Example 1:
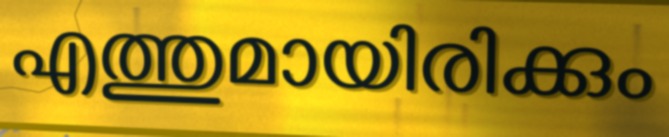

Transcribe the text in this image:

എത്തുമായിരിക്കും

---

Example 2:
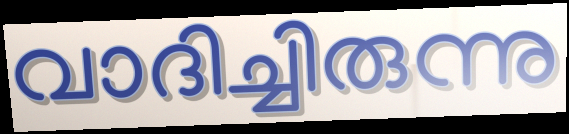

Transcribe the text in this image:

വാദിച്ചിരുന്നു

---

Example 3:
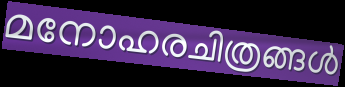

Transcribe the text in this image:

മനോഹരചിത്രങ്ങൾ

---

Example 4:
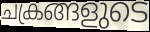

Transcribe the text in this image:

ചക്രങ്ങളുടെ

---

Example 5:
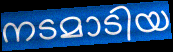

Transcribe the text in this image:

നടമാടിയ